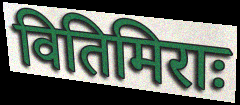
वितिमिराः